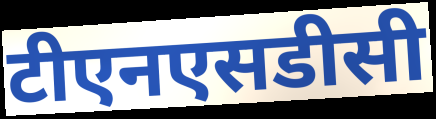
टीएनएसडीसी